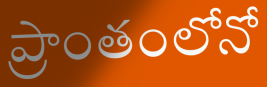
ప్రాంతంలోనో